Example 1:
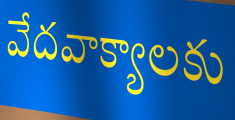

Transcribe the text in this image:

వేదవాక్యాలకు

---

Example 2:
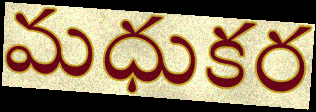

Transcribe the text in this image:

మధుకర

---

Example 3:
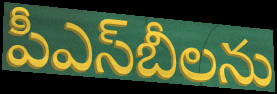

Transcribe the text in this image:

పీఎస్‌బీలను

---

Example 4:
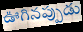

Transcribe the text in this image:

ఊగినప్పుడు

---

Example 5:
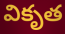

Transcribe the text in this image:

వికృత